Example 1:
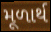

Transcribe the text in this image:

મૂળાર્થ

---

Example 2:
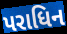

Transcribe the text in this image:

પરાધિન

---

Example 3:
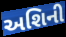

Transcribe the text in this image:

અશિની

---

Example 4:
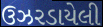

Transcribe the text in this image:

ઉઝરડાયેલી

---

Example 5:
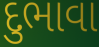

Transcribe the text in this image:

દુભાવા